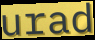
urad